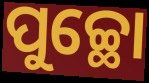
ପୁଚ୍ଛୋ